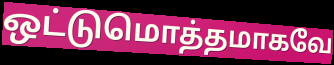
ஒட்டுமொத்தமாகவே